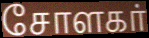
சோளகர்